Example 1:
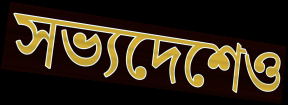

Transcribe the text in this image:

সভ্যদেশেও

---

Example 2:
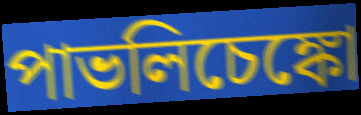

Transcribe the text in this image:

পাভলিচেঙ্কো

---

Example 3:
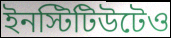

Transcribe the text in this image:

ইনস্টিটিউটেও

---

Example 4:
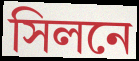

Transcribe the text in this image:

সিলনে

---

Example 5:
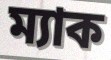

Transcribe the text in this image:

ম্যাক